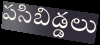
పసిబిడ్డలు